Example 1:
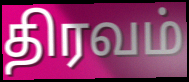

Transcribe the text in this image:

திரவம்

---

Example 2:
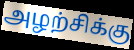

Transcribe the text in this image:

அழற்சிக்கு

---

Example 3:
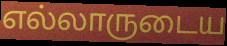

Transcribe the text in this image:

எல்லாருடைய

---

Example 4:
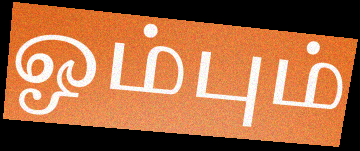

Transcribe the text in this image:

ஓம்பும்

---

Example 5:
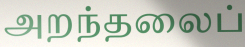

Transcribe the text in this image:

அறந்தலைப்